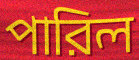
পারিল